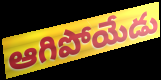
ఆగిపోయేడు